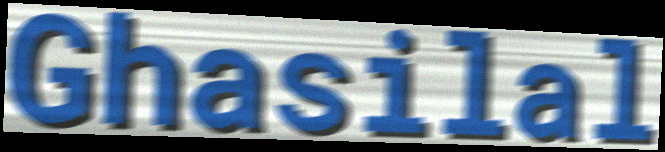
Ghasilal